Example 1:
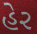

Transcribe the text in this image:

હેર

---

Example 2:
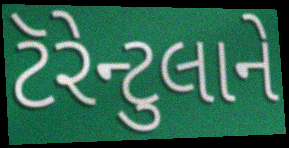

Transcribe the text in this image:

ટૅરેન્ટુલાને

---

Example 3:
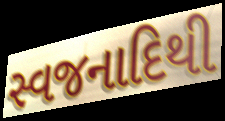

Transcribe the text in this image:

સ્વજનાદિથી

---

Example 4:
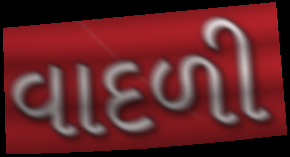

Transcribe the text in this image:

વાદળી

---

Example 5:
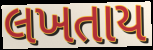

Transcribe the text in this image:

લખતાય